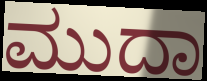
ಮುದಾ